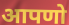
आपणो